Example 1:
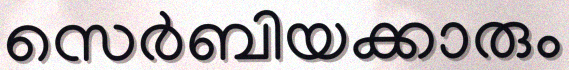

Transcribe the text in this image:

സെർബിയക്കാരും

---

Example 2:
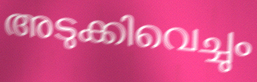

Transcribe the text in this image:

അടുക്കിവെച്ചും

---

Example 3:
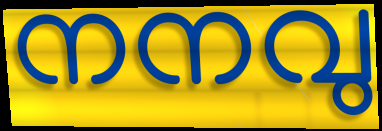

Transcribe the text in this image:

നനവു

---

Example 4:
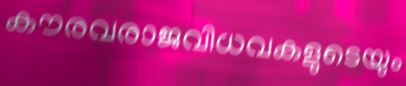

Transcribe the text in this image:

കൗരവരാജവിധവകളുടെയും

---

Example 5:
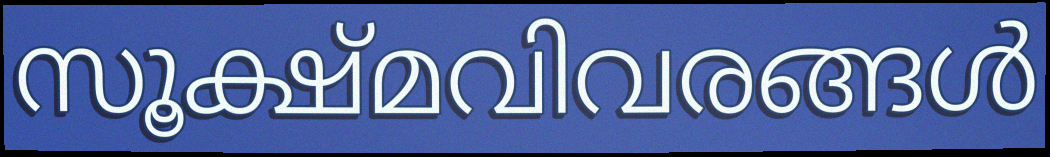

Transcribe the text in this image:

സൂക്ഷ്മവിവരങ്ങൾ